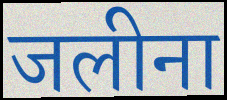
जलीना